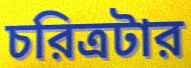
চরিত্রটার